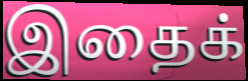
இதைக்